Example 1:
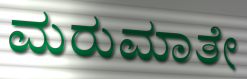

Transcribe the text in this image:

ಮರುಮಾತೇ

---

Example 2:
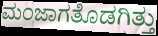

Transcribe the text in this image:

ಮಂಜಾಗತೊಡಗಿತ್ತು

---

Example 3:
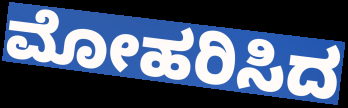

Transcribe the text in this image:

ಮೋಹರಿಸಿದ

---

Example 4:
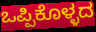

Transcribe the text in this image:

ಒಪ್ಪಿಕೊಳ್ಳದ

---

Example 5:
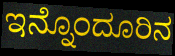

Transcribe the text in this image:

ಇನ್ನೊಂದೂರಿನ